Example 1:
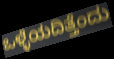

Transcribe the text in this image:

ಒಳ್ಳೆಯದಿತ್ತೆಂದು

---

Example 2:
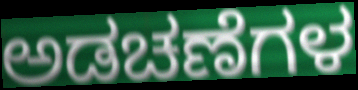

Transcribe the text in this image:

ಅಡಚಣೆಗಳ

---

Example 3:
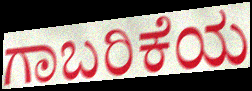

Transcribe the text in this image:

ಗಾಬರಿಕೆಯ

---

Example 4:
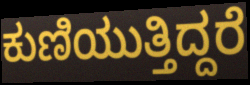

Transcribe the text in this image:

ಕುಣಿಯುತ್ತಿದ್ದರೆ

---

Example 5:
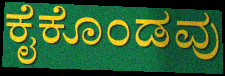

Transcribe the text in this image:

ಕೈಕೊಂಡವು